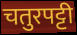
चतुरपट्टी